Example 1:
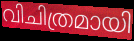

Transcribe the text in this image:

വിചിത്രമായി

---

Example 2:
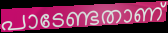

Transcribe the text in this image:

പാടേണ്ടതാണ്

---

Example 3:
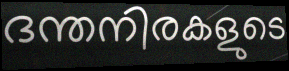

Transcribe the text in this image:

ദന്തനിരകളുടെ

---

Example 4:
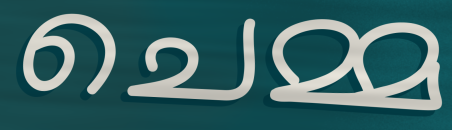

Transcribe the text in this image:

ചെമ്മ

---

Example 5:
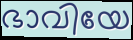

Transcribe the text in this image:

ഭാവിയേ